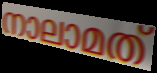
നാലാമത്